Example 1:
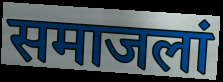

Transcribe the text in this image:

समाजलां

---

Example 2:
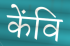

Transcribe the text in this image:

केंवि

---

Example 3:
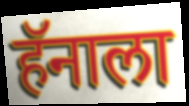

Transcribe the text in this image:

हॅनाला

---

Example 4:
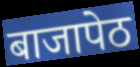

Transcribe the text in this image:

बाजापेठ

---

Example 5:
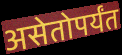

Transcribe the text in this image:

असेतोपर्यंत